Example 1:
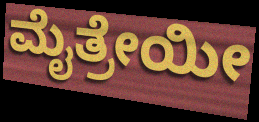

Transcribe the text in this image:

ಮೈತ್ರೇಯೀ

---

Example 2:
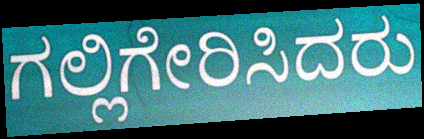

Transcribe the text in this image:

ಗಲ್ಲಿಗೇರಿಸಿದರು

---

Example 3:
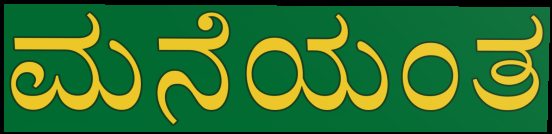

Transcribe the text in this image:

ಮನೆಯಂತ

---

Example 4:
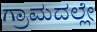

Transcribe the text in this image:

ಗ್ರಾಮದಲ್ಲೇ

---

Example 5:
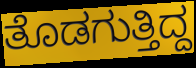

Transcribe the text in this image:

ತೊಡಗುತ್ತಿದ್ದ